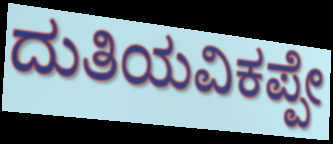
ದುತಿಯವಿಕಪ್ಪೇ